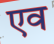
एव